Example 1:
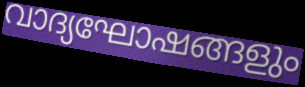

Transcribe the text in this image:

വാദ്യഘോഷങ്ങളും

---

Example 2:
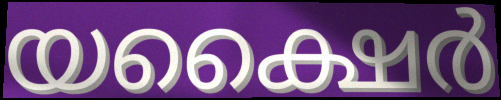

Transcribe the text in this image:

യക്ഷൈർ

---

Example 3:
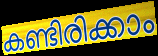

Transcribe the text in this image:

കണ്ടിരിക്കാം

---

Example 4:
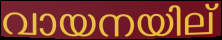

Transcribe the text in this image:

വായനയില്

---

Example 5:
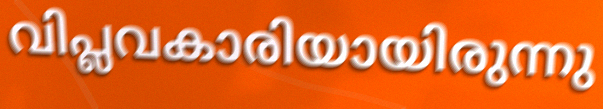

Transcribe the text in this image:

വിപ്ലവകാരിയായിരുന്നു